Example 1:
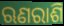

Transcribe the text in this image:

ଋଣରାଶି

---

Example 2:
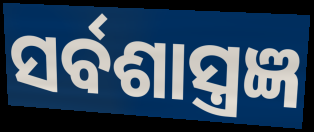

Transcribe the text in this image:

ସର୍ବଶାସ୍ତ୍ରଜ୍ଞ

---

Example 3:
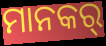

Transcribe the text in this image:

ମାନକର୍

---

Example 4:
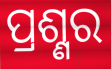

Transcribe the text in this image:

ପ୍ରଶ୍ଣର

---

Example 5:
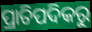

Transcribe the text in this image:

ପ୍ରାତିପଦିକରୁ